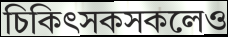
চিকিৎসকসকলেও